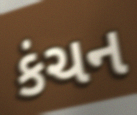
કંચન